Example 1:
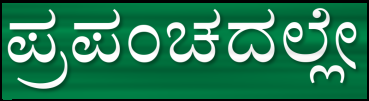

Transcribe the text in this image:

ಪ್ರಪಂಚದಲ್ಲೇ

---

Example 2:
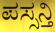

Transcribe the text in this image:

ಪಸ್ಸನ್ತಿ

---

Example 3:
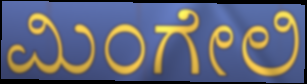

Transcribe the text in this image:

ಮಿಂಗೇಲಿ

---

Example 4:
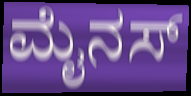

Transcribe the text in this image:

ಮೈನಸ್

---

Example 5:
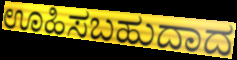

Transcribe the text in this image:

ಊಹಿಸಬಹುದಾದ